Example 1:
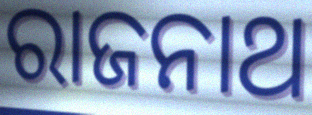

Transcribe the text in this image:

ରାଜନାଥ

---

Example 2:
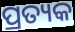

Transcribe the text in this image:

ପ୍ରତ୍ୟକ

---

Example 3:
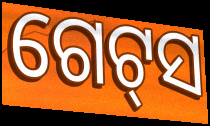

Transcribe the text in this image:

ଗେଟ୍‌ସ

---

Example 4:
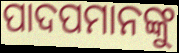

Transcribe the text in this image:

ପାଦପମାନଙ୍କୁ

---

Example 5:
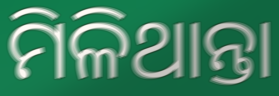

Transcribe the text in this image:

ମିଳିଥାନ୍ତା